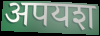
अपयश